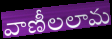
వాణీలలామ